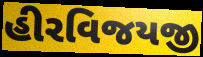
હીરવિજયજી